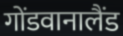
गोंडवानालैंड